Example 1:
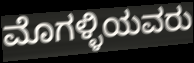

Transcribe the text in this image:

ಮೊಗಳ್ಳಿಯವರು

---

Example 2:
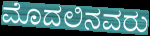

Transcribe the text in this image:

ಮೊದಲಿನವರು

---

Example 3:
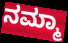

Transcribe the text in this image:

ನಮ್ಮಾ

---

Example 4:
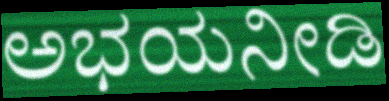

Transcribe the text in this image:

ಅಭಯನೀಡಿ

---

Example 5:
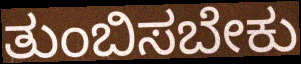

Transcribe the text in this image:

ತುಂಬಿಸಬೇಕು